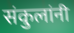
संकुलांनी